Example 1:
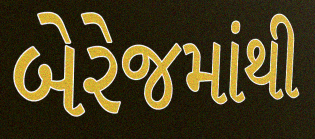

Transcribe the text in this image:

બેરેજમાંથી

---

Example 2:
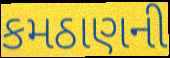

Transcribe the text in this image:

કમઠાણની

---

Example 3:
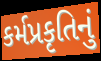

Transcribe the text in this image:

કર્મપ્રકૃતિનું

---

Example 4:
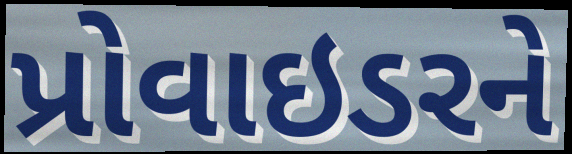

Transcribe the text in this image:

પ્રોવાઇડરને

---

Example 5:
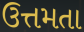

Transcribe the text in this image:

ઉત્તમતા